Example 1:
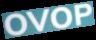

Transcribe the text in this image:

OVOP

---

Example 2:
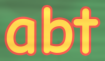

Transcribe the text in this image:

abt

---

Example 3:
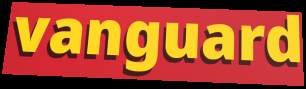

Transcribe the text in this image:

vanguard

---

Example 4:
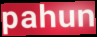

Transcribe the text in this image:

pahun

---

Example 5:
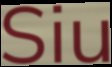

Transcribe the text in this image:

Siu